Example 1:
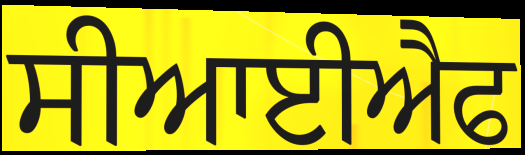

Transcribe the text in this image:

ਸੀਆਈਐਫ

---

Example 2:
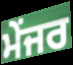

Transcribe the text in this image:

ਮੇਂਜਰ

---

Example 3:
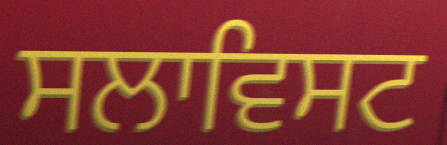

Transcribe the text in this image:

ਸਲਾਵਿਸਟ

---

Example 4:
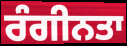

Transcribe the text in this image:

ਰੰਗੀਨਤਾ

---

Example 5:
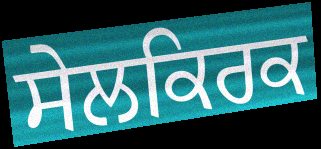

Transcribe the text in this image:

ਸੇਲਕਿਰਕ